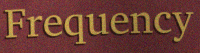
Frequency